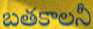
బతకాలనీ